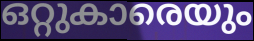
ഒറ്റുകാരെയും